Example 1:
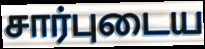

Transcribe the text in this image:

சார்புடைய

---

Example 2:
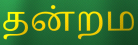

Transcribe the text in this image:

தன்றம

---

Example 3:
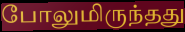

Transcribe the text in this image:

போலுமிருந்தது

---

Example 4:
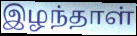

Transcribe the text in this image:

இழந்தாள்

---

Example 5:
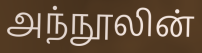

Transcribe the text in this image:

அந்நூலின்